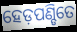
ହେଡ଼ପଣ୍ଡିତେ